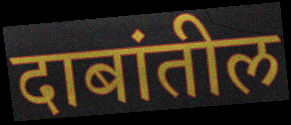
दाबांतील